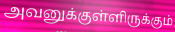
அவனுக்குள்ளிருக்கும்